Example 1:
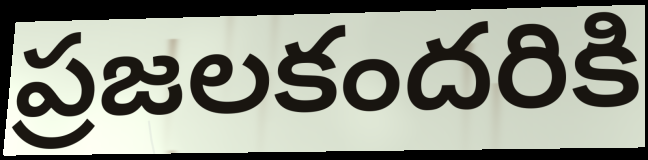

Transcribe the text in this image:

ప్రజలకందరికి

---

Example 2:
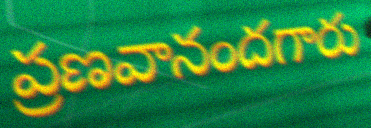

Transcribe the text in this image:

ప్రణవానందగారు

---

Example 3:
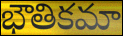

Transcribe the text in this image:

భౌతికమా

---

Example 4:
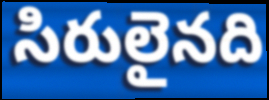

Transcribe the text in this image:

సిరులైనది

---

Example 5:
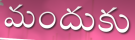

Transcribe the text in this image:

మందుకు